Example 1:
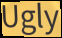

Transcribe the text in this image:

Ugly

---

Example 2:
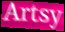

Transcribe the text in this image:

Artsy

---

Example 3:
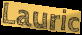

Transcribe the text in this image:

Lauric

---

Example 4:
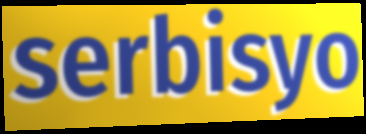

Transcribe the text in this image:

serbisyo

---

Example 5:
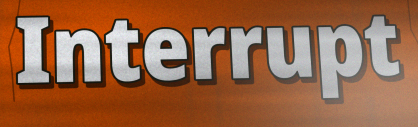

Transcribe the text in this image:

Interrupt